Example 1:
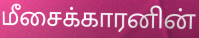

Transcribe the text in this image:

மீசைக்காரனின்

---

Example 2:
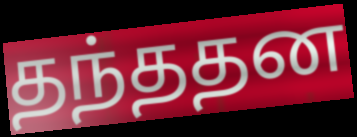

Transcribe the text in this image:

தந்ததன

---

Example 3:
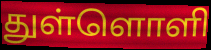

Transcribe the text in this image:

துள்ளொளி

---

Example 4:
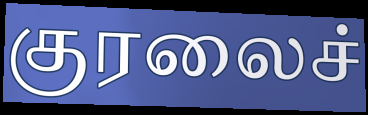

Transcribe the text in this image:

குரலைச்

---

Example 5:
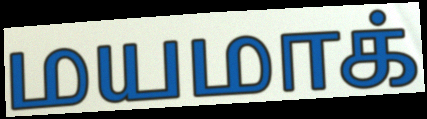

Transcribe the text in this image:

மயமாக்